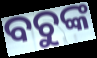
ବଚୁଙ୍କ